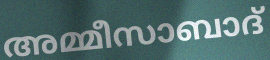
അമ്മീസാബാദ്